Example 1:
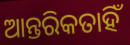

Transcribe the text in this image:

ଆନ୍ତରିକତାହିଁ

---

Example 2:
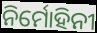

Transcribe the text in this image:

ନିର୍ମୋହିନୀ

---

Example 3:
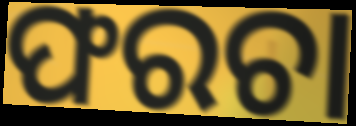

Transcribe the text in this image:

ଫରଚା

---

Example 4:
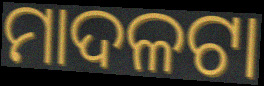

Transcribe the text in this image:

ମାଦଳଟା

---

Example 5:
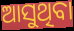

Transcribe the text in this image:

ଆସୁଥିବା